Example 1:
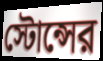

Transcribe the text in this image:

স্টোন্সের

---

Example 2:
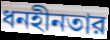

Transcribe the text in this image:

ধনহীনতার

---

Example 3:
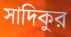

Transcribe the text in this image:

সাদিকুর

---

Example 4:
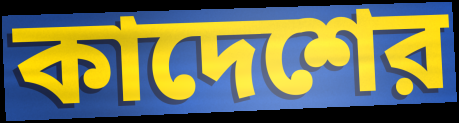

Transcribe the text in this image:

কাদেশের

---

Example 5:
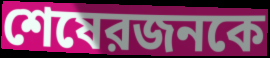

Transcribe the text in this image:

শেষেরজনকে